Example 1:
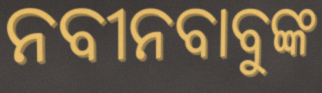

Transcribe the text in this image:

ନବୀନବାବୁଙ୍କ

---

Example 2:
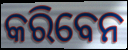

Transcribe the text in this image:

କରିବେନ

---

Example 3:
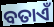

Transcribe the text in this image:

ବତାଏଁ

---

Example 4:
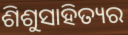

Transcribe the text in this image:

ଶିଶୁସାହିତ୍ୟର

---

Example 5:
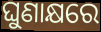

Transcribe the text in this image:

ଘୁଣାକ୍ଷରେ